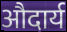
औदार्य